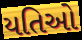
યતિઓ